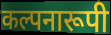
कल्पनारूपी